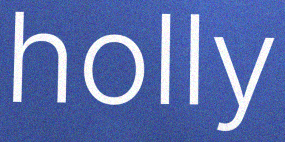
holly